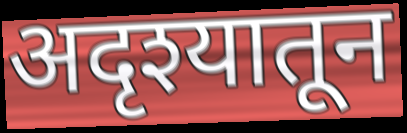
अदृश्यातून